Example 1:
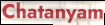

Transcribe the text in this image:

Chatanyam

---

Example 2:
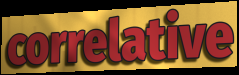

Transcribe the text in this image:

correlative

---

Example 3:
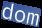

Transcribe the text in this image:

dom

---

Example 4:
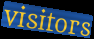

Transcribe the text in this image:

visitors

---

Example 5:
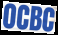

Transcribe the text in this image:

OCBC